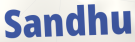
Sandhu